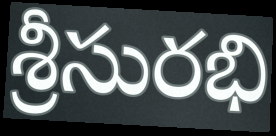
శ్రీసురభి